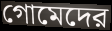
গোমেদের